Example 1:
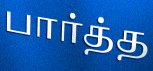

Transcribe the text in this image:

பார்த்த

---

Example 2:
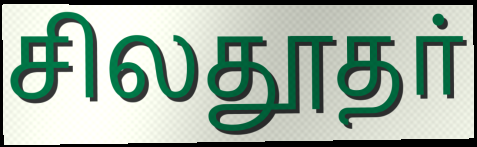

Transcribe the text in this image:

சிலதூதர்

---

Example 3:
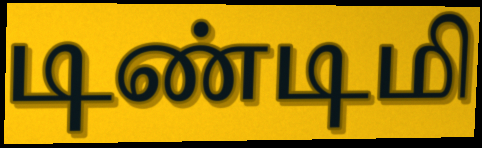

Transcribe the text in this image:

டிண்டிமி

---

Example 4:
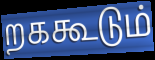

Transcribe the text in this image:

றககூடும்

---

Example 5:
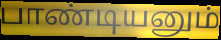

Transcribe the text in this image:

பாண்டியனும்